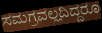
ಸಮಗ್ರವಲ್ಲದಿದ್ದರೂ